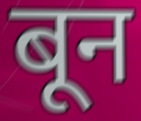
बून